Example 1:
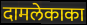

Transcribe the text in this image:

दामलेकाका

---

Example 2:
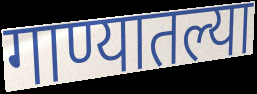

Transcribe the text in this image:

गाण्यातल्या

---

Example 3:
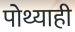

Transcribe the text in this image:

पोथ्याही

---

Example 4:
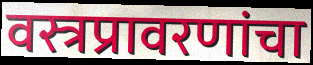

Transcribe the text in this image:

वस्त्रप्रावरणांचा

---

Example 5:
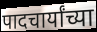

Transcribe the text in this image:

पादचार्यांच्या